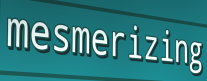
mesmerizing